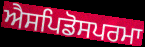
ਐਸਪਿਡੋਸਪਰਮਾ